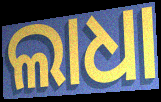
ଲାଧା